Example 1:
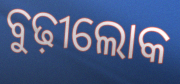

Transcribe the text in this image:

ବୁଢ଼ୀଲୋକ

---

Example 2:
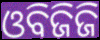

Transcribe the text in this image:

ଓବିଜିଜି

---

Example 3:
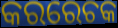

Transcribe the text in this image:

କରରେଚକ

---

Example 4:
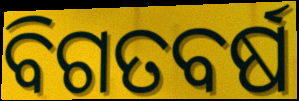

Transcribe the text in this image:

ବିଗତବର୍ଷ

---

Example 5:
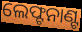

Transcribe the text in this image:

ଲେଫ୍ଟନାଣ୍ଟ